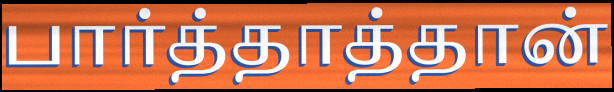
பார்த்தாத்தான்